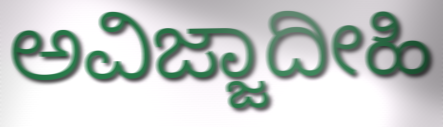
ಅವಿಜ್ಜಾದೀಹಿ